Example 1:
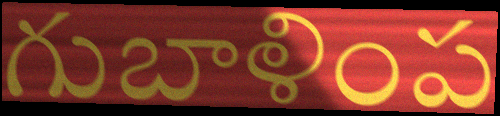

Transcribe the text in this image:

గుబాళింప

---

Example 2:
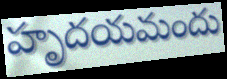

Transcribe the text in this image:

హృదయమందు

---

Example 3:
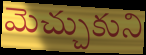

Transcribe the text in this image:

మెచ్చుకుని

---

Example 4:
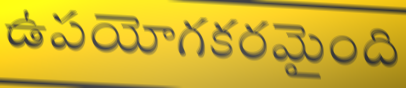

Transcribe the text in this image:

ఉపయోగకరమైంది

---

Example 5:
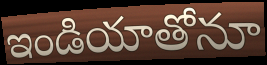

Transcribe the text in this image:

ఇండియాతోనూ